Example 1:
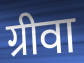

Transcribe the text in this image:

ग्रीवा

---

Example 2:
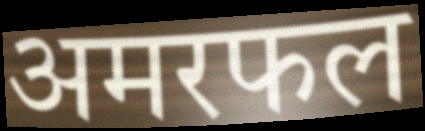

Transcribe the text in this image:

अमरफल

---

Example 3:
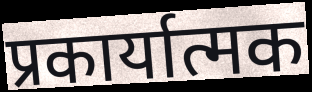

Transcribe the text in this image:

प्रकार्यात्मक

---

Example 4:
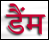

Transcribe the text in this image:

डैंम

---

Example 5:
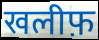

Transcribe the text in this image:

खलीफ़